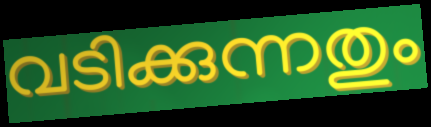
വടിക്കുന്നതും